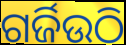
ଗର୍ଜିଉଠି